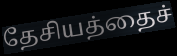
தேசியத்தைச்